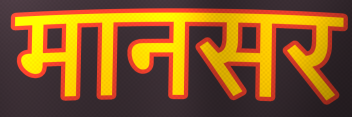
मानसर